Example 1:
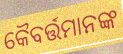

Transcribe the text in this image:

କୈବର୍ତ୍ତମାନଙ୍କ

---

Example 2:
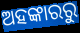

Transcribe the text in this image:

ଅହଙ୍କାରରୁ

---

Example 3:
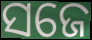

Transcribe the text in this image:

ସଜେ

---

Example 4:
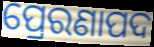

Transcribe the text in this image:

ପ୍ରେରଣାପଦ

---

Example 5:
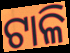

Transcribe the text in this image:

ଟାଳି